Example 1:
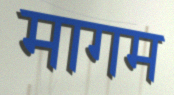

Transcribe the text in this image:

मागम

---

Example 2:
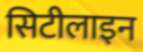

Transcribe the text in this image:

सिटीलाइन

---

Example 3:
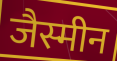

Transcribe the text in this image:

जैस्‍मीन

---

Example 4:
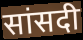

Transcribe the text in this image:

सांसदी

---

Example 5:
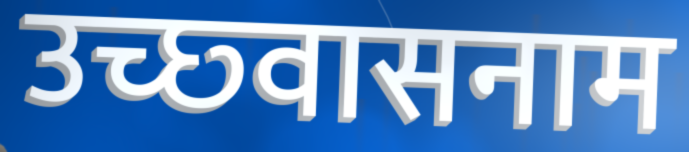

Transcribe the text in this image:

उच्छ्वासनाम